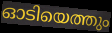
ഓടിയെത്തും